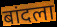
बांदला